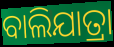
ବାଲିଯାତ୍ରା